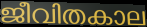
ജീവിതകാല